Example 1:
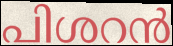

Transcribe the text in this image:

പിശറൻ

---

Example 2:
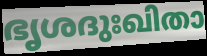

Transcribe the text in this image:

ഭൃശദുഃഖിതാ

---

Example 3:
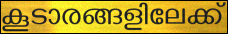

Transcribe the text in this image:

കൂടാരങ്ങളിലേക്ക്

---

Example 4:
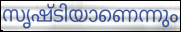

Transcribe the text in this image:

സൃഷ്ടിയാണെന്നും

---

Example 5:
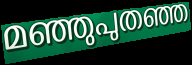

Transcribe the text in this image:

മഞ്ഞുപുതഞ്ഞ